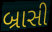
બ્રાસી